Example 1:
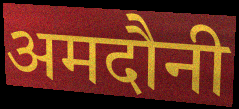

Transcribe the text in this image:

अमदौनी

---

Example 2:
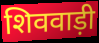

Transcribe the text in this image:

शिववाड़ी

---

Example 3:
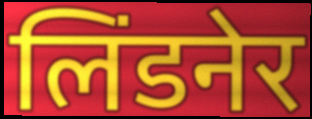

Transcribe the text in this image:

लिंडनेर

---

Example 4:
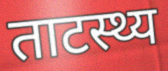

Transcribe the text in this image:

ताटस्थ्य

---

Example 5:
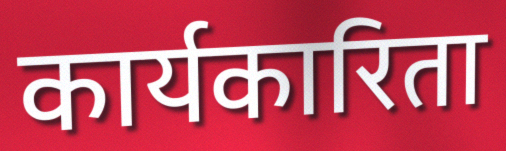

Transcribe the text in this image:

कार्यकारिता